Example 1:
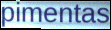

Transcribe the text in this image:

pimentas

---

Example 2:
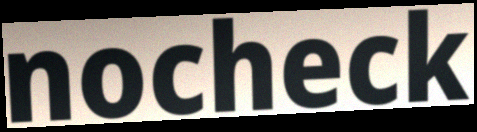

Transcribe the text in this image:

nocheck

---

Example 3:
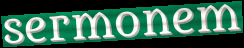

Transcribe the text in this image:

sermonem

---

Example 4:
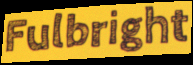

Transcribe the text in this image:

Fulbright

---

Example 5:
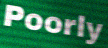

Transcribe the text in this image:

Poorly